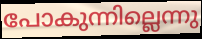
പോകുന്നില്ലെന്നു